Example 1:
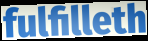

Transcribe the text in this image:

fulfilleth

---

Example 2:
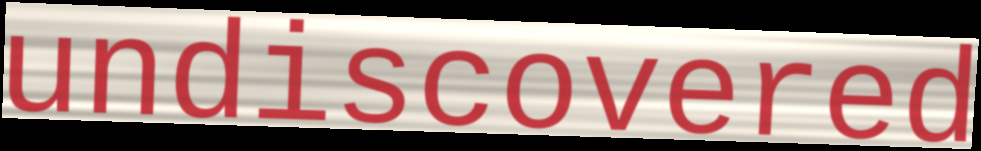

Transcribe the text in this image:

undiscovered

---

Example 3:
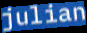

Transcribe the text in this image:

julian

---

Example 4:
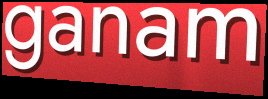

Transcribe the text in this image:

ganam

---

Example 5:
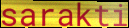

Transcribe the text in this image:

sarakti